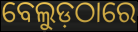
ବେଲୁଡ଼ଠାରେ